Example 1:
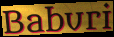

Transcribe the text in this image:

Baburi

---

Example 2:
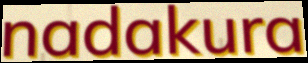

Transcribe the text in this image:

nadakura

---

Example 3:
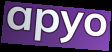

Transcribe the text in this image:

apyo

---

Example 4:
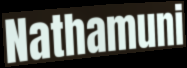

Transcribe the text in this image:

Nathamuni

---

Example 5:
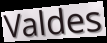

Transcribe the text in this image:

Valdes